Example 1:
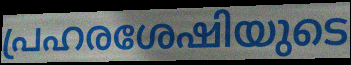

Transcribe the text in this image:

പ്രഹരശേഷിയുടെ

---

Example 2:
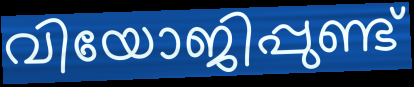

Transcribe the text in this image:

വിയോജിപ്പുണ്ട്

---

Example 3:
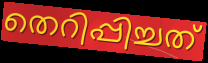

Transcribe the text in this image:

തെറിപ്പിച്ചത്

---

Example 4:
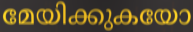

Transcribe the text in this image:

മേയിക്കുകയോ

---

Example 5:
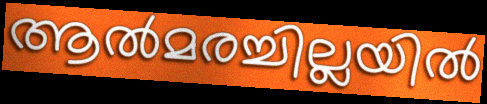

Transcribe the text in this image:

ആൽമരച്ചില്ലയിൽ